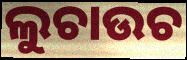
ଲୁଚାଉଚ